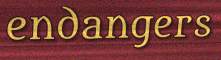
endangers